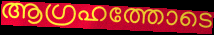
ആഗ്രഹത്തോടെ